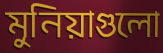
মুনিয়াগুলো